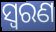
ସ୍ୱରଣ